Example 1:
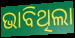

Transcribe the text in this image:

ଭାବିଥିଲା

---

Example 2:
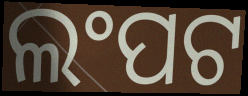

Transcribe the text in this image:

ଲଂପଟ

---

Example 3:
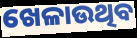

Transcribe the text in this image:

ଖେଳାଉଥିବ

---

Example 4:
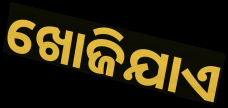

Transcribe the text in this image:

ଖୋଜିଯାଏ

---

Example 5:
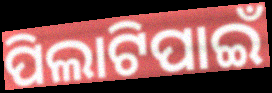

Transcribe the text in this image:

ପିଲାଟିପାଇଁ